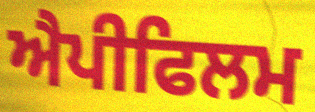
ਐਪੀਫਿਲਮ